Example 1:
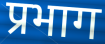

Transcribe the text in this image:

प्रभाग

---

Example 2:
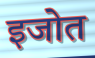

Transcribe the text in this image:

इजोत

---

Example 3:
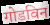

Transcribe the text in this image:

गोडविन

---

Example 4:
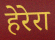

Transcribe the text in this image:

हेरेरा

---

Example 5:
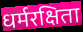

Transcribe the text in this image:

धर्मरक्षिता